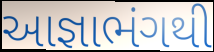
આજ્ઞાભંગથી